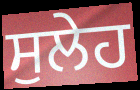
ਸੁਲੇਹ